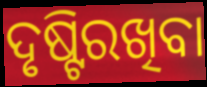
ଦୃଷ୍ଟିରଖିବା